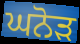
ਘਨੋੜ